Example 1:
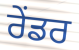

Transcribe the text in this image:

ਰੇੰਡਰ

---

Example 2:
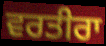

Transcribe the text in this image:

ਵਰਤੀਰਾ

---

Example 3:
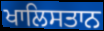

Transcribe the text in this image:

ਖਾਲਿਸਤਾਨ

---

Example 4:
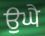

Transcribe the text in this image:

ਉਘੈ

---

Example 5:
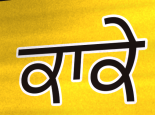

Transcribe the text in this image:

ਕਾਕੇ